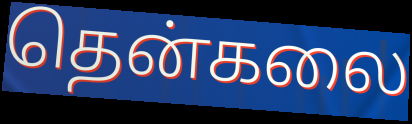
தென்கலை